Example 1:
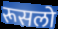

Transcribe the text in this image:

रूसलो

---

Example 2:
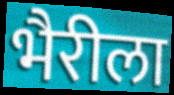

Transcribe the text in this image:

भैरीला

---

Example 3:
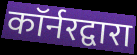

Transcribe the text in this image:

कॉर्नरद्वारा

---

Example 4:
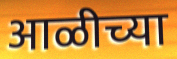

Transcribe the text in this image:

आळीच्या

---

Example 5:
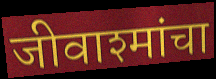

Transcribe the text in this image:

जीवाश्मांचा